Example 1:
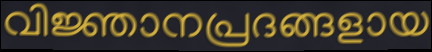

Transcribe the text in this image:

വിജ്ഞാനപ്രദങ്ങളായ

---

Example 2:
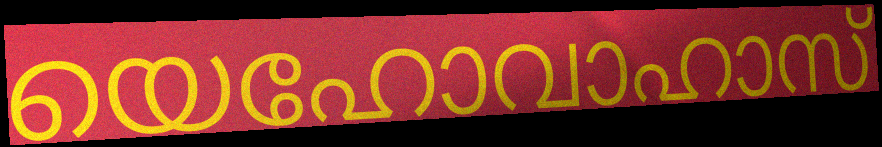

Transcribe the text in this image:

യെഹോവാഹാസ്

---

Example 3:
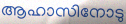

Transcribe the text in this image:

ആഹാസിനോടു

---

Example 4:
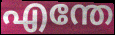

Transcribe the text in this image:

എന്തേ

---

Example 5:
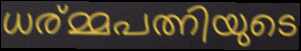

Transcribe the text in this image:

ധര്മ്മപത്നിയുടെ